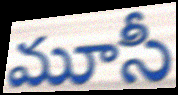
మూసీ